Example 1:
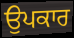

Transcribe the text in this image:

ਉਪਕਾਰ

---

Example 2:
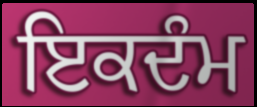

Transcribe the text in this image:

ਇਕਦੰਮ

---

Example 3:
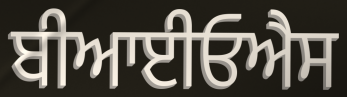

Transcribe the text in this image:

ਬੀਆਈਓਐਸ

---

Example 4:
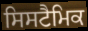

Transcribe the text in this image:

ਸਿਸਟੈਮਿਕ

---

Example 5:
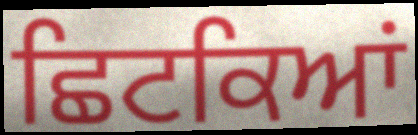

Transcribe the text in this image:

ਛਿਟਕਿਆਂ